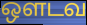
ஔடவ